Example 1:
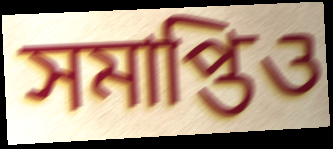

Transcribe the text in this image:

সমাপ্তিও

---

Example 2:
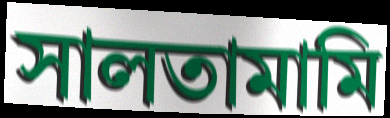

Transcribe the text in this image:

সালতামামি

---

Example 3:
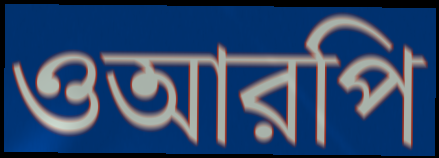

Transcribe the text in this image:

ওআরপি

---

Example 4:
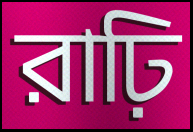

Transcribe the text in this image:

রাঢ়ি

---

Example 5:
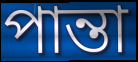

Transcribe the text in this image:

পান্তা